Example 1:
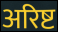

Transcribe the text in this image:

अरिष्ट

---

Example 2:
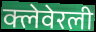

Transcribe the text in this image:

क्लेवेरली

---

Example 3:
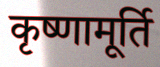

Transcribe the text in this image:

कृष्णामूर्ति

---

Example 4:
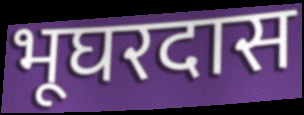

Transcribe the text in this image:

भूघरदास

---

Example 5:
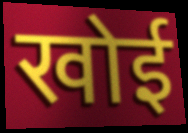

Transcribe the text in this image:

खोई